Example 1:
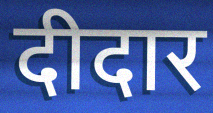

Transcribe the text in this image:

दीदार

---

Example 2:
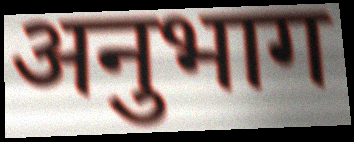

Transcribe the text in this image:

अनुभाग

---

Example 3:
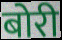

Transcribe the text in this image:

बोरी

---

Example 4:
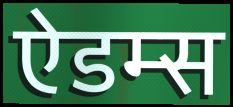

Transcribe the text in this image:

ऐडम्स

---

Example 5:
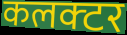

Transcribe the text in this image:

कलक्‍टर